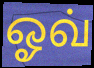
ஓவ்